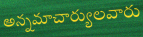
అన్నమాచార్యులవారు